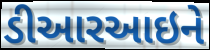
ડીઆરઆઇને